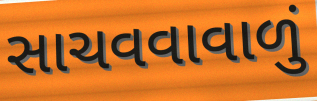
સાચવવાવાળું